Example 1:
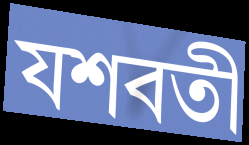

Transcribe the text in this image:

যশবতী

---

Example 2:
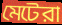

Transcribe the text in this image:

মেটেরা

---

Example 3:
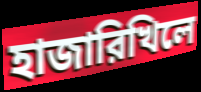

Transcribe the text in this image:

হাজারিখিলে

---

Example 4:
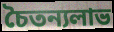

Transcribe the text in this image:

চৈতন্যলাভ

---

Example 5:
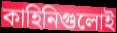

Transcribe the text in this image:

কাহিনিগুলোই